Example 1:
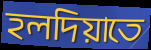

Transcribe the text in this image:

হলদিয়াতে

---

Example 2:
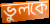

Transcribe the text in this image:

ভুলকে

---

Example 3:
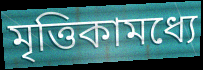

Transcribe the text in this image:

মৃত্তিকামধ্যে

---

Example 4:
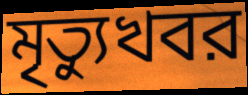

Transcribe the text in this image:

মৃত্যুখবর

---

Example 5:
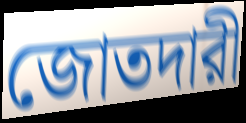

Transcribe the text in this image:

জোতদারী